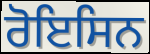
ਰੋਇਸਿਨ